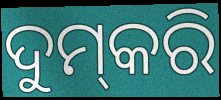
ଦୁମ୍‍କରି